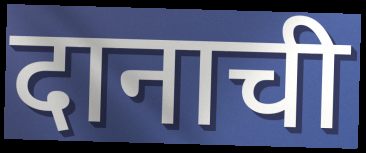
दानाची